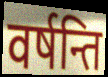
वर्षन्ति